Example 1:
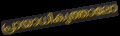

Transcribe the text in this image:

പ്രായാധിക്യത്താലോ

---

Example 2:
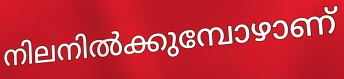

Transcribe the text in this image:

നിലനിൽക്കുമ്പോഴാണ്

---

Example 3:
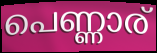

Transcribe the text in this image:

പെണ്ണാര്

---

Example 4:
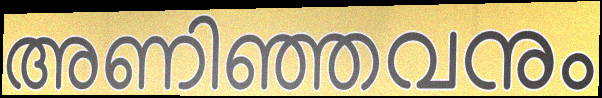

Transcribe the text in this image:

അണിഞ്ഞവനും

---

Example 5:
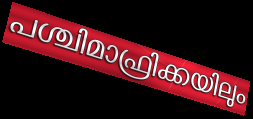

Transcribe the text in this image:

പശ്ചിമാഫ്രിക്കയിലും